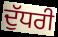
ਦੁੱਧਰੀ